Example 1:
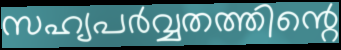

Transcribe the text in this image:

സഹ്യപർവ്വതത്തിന്റെ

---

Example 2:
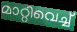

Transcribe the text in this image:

മാറ്റിവെച്ച്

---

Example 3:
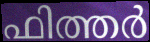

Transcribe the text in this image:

ഫിത്തർ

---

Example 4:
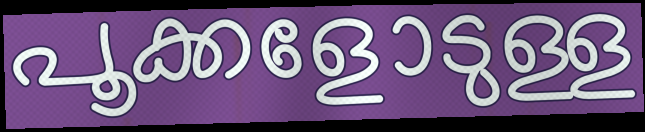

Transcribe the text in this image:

പൂക്കളോടുള്ള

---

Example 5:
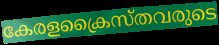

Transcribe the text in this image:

കേരളക്രൈസ്തവരുടെ